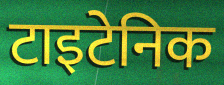
टाइटेनिक